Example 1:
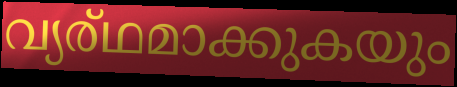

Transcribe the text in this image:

വ്യര്ഥമാക്കുകയും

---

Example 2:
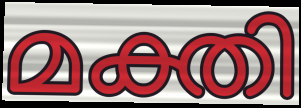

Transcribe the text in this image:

മക്തി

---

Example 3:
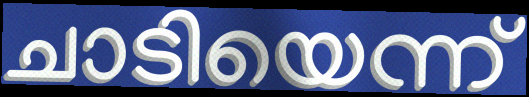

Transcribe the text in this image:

ചാടിയെന്ന്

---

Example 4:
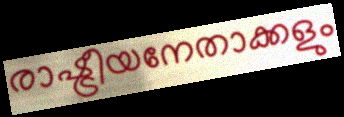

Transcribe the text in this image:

രാഷ്ട്രീയനേതാക്കളും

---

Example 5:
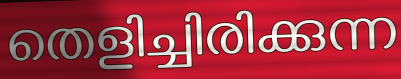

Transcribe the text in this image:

തെളിച്ചിരിക്കുന്ന